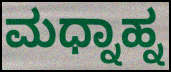
ಮಧ್ನಾಹ್ನ